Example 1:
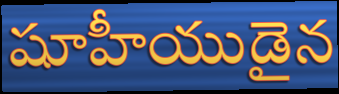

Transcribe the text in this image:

షూహీయుడైన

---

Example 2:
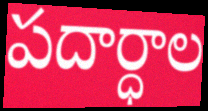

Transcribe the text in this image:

పదార్ధాల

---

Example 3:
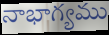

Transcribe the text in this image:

నాభాగ్యము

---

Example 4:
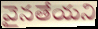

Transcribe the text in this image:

వైనతేయని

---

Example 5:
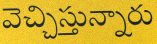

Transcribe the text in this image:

వెచ్చిస్తున్నారు